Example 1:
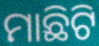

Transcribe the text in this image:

ମାଛିଟି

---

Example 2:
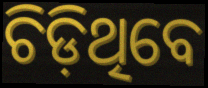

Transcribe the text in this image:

ଚିଡ଼ିଥିବେ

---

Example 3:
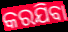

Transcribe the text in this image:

କରଯିବା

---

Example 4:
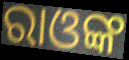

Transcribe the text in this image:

ରାଓଙ୍କ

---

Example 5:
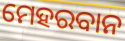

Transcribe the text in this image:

ମେହରବାନ